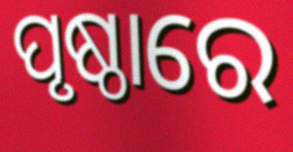
ପୃଷ୍ଠାରେ